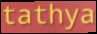
tathya